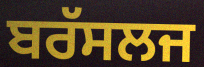
ਬਰੱਸਲਜ